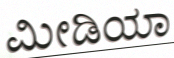
ಮೀಡಿಯಾ